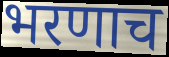
भरणाच